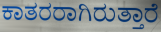
ಕಾತರರಾಗಿರುತ್ತಾರೆ